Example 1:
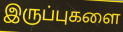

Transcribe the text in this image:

இருப்புகளை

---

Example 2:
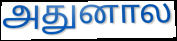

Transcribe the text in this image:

அதுனால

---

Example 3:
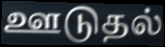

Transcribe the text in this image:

ஊடுதல்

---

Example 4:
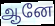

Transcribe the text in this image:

ஆனே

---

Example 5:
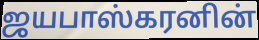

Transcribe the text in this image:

ஜயபாஸ்கரனின்